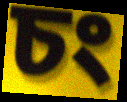
চং